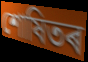
শোষিতৰ